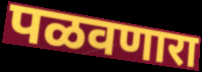
पळवणारा